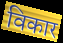
विकार